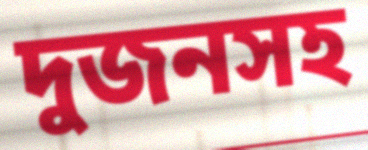
দুজনসহ